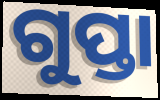
ଗୁପ୍ତା